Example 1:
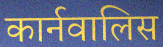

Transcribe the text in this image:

कार्नवालिस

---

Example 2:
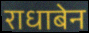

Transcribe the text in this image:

राधाबेन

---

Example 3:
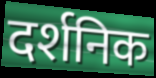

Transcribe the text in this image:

दर्शनिक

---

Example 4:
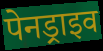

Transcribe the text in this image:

पेनड्राइव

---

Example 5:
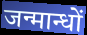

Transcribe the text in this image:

जन्मान्धों